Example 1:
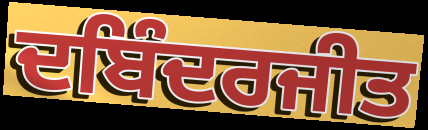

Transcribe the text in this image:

ਦਬਿੰਦਰਜੀਤ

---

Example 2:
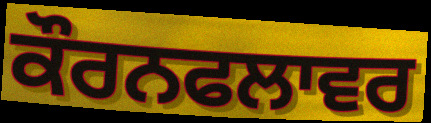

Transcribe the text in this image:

ਕੌਰਨਫਲਾਵਰ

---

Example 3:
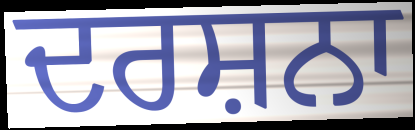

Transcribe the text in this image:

ਦਰਸ਼ਨਾ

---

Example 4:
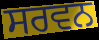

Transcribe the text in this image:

ਸਰਵਨ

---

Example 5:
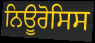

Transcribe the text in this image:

ਨਿਊਰੋਸਿਸ